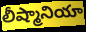
లీష్మానియా